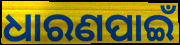
ଧାରଣପାଇଁ